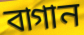
বাগান